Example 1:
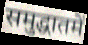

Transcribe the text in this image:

समुद्धातमें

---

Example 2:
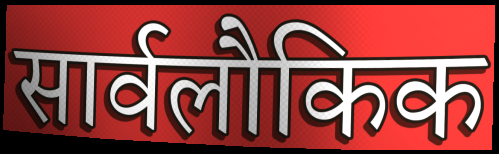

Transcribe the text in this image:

सार्वलौकिक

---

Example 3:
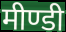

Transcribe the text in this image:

मीण्‍डी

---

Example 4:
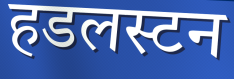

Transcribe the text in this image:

हडलस्टन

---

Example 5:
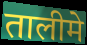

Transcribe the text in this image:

तालीमे